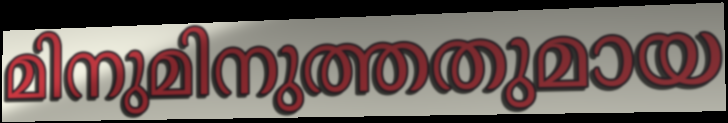
മിനുമിനുത്തതുമായ